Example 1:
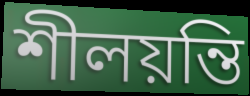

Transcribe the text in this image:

শীলয়ন্তি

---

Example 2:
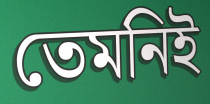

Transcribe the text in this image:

তেমনিই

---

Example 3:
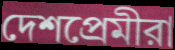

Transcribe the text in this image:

দেশপ্রেমীরা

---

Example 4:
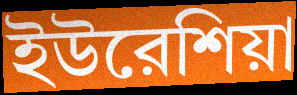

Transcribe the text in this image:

ইউরেশিয়া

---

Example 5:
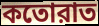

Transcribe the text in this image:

কতোরাত